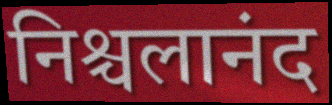
निश्चलानंद